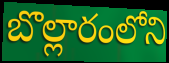
బొల్లారంలోని